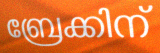
ബ്രേക്കിന്